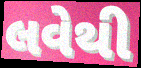
લવેથી